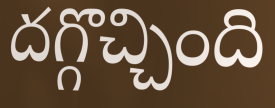
దగ్గొచ్చింది